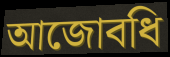
আজোবধি